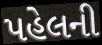
પહેલની